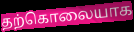
தற்கொலையாக